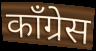
कॉंग्रेस